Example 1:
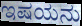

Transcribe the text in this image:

ಇಷಯನು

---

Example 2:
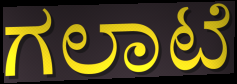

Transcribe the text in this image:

ಗಲಾಟೆ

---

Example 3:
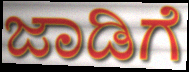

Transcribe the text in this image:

ಜಾಡಿಗೆ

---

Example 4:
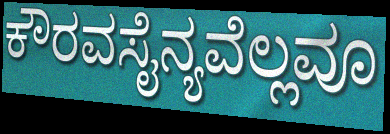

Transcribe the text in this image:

ಕೌರವಸೈನ್ಯವೆಲ್ಲವೂ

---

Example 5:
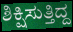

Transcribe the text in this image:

ಶಿಕ್ಷಿಸುತ್ತಿದ್ದ